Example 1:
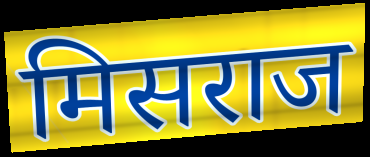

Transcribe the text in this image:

मिसराज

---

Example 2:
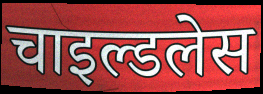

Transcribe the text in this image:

चाइल्डलेस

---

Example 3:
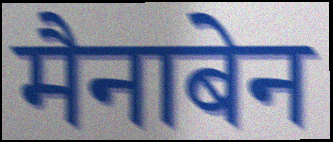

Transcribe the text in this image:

मैनाबेन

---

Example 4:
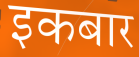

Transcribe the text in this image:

इकबार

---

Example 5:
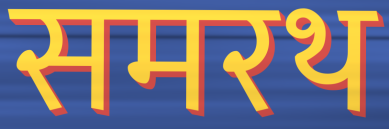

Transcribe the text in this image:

समरथ